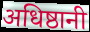
अधिष्ठानी